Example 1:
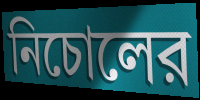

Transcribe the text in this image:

নিচোলের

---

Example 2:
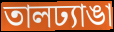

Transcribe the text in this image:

তালঢ্যাঙা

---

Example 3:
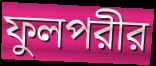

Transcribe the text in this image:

ফুলপরীর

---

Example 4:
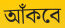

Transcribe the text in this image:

আঁকবে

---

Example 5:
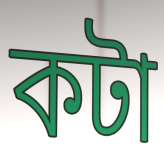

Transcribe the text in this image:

কটা